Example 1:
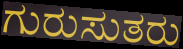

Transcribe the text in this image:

ಗುರುಸುತರು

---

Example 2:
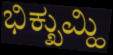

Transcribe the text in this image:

ಭಿಕ್ಖುಮ್ಹಿ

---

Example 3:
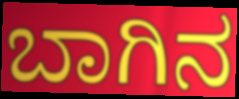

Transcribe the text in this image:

ಬಾಗಿನ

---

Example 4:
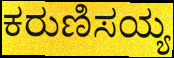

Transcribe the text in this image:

ಕರುಣಿಸಯ್ಯ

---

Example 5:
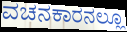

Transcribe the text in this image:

ವಚನಕಾರನಲ್ಲೂ